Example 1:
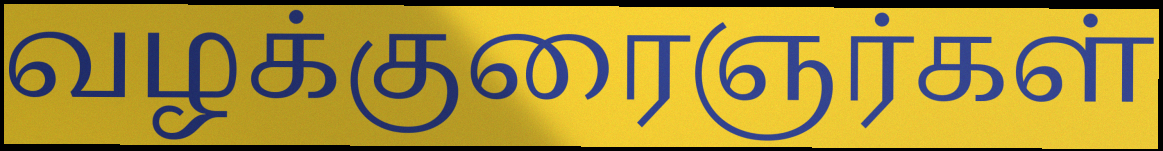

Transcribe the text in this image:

வழக்குரைஞர்கள்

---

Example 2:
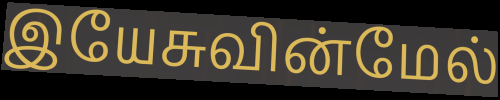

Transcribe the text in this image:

இயேசுவின்மேல்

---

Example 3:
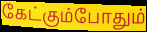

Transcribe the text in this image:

கேட்கும்போதும்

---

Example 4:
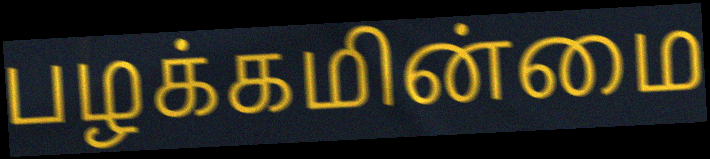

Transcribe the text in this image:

பழக்கமின்மை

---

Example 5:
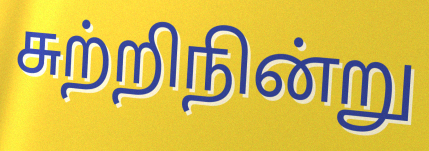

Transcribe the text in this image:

சுற்றிநின்று